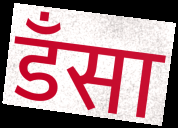
डँसा